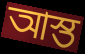
আস্ত